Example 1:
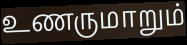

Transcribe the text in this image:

உணருமாறும்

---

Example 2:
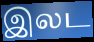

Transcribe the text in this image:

இலட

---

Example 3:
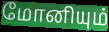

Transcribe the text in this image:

மோனியும்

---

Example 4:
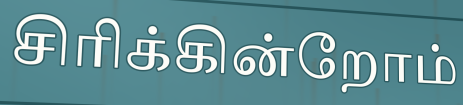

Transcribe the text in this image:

சிரிக்கின்றோம்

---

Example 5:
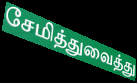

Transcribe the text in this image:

சேமித்துவைத்து